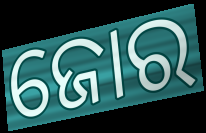
ଜୋର